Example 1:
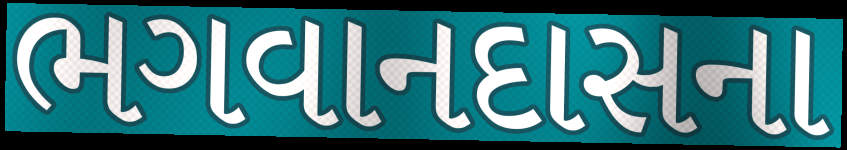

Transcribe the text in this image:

ભગવાનદાસના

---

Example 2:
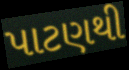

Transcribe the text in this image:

પાટણથી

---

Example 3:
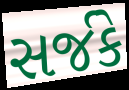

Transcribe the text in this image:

સર્જકે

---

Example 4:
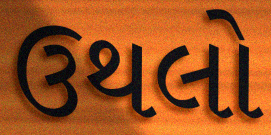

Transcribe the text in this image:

ઉથલો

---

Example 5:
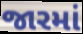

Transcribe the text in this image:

જારમાં